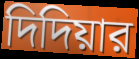
দিদিয়ার